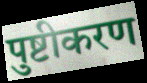
पुष्टीकरण